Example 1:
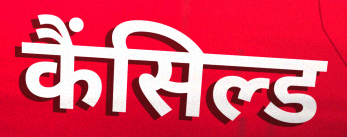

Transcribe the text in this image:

कैंसिल्ड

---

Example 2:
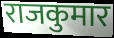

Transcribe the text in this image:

राजकुमार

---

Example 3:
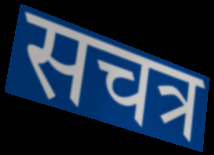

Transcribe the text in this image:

सचत्र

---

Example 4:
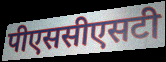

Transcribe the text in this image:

पीएससीएसटी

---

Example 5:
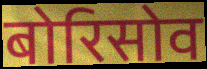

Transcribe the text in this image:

बोरिसोव